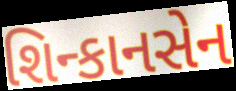
શિન્કાનસેન